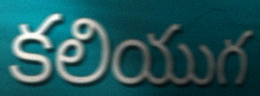
కలియుగ